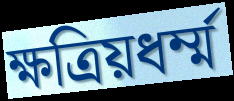
ক্ষত্রিয়ধর্ম্ম